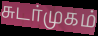
சுடர்முகம்